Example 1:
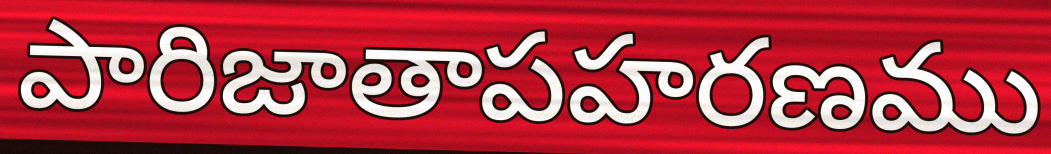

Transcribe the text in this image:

పారిజాతాపహరణము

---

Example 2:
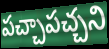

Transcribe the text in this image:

పచ్చాపచ్చని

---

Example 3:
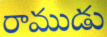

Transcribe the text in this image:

రాముడు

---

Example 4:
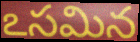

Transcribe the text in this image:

ఽసమిన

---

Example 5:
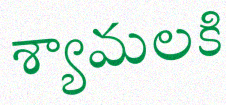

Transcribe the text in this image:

శ్యామలకి